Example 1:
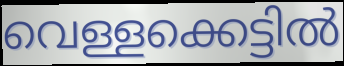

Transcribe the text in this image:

വെള്ളക്കെട്ടിൽ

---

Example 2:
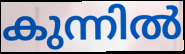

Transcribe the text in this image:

കുന്നിൽ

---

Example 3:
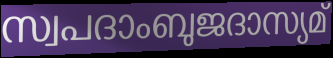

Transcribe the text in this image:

സ്വപദാംബുജദാസ്യമ്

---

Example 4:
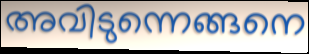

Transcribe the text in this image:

അവിടുന്നെങ്ങനെ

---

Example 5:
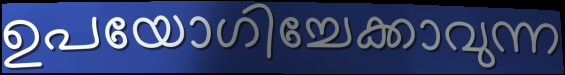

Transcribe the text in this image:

ഉപയോഗിച്ചേക്കാവുന്ന